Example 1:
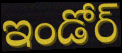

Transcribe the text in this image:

ఇండోర్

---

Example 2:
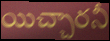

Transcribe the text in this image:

యిచ్చారనీ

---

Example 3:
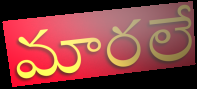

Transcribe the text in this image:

మారలే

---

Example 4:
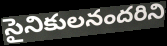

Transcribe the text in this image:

సైనికులనందరిని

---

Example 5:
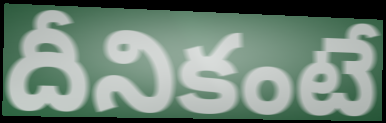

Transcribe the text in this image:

దీనికంటే